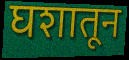
घशातून